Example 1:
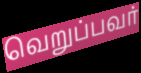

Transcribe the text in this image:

வெறுப்பவர்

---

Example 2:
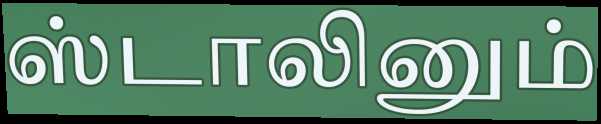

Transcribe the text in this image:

ஸ்டாலினும்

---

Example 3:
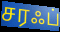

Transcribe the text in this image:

சரஃப்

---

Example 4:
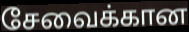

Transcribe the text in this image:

சேவைக்கான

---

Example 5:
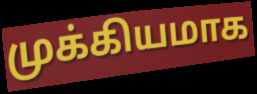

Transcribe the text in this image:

முக்கியமாக